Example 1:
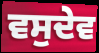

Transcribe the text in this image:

ਵਸੁਦੇਵ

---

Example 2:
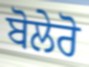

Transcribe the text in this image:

ਬੋਲੇਰੋ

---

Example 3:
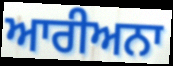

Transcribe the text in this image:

ਆਰੀਅਨਾ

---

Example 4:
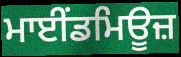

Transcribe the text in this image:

ਮਾਈਂਡਮਿਊਜ਼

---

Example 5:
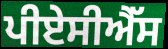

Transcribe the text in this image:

ਪੀਏਸੀਐੱਸ